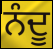
ਨੰਦੂ